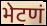
भेटणं